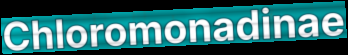
Chloromonadinae